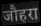
जौहरा